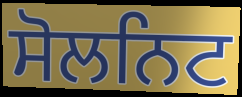
ਸੋਲਨਿਟ